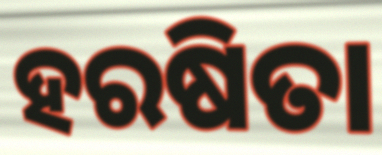
ହରଷିତା